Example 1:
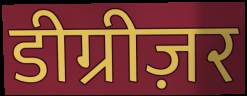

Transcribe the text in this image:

डीग्रीज़र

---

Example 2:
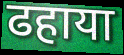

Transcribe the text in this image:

ढहाया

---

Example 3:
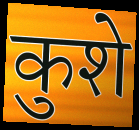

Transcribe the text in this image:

कुशे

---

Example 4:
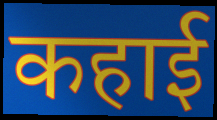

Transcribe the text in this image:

कहाई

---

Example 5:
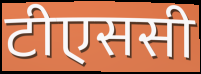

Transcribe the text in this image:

टीएससी